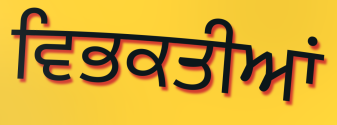
ਵਿਭਕਤੀਆਂ